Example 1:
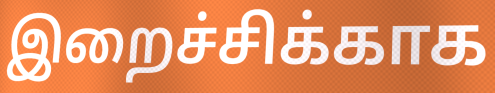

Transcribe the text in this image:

இறைச்சிக்காக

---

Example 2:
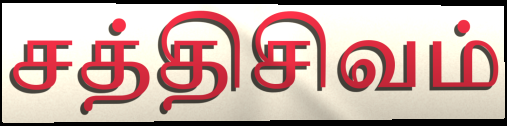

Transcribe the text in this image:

சத்திசிவம்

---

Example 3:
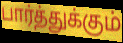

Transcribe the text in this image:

பார்த்துக்கும்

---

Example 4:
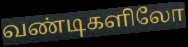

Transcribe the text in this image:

வண்டிகளிலோ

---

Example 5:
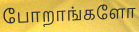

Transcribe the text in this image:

போறாங்களோ